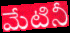
మేటినీ